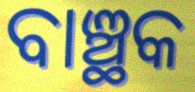
ବାଞ୍ଛକ